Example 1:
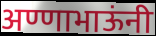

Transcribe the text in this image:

अण्णाभाऊंनी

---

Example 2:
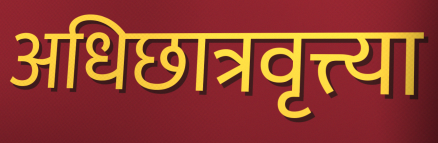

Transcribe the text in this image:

अधिछात्रवृत्त्या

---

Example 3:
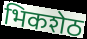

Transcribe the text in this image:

भिकशेठ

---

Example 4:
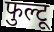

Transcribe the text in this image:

फुल्टू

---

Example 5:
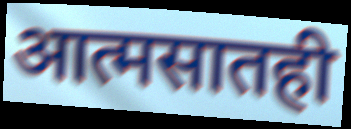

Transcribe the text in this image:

आत्मसातही